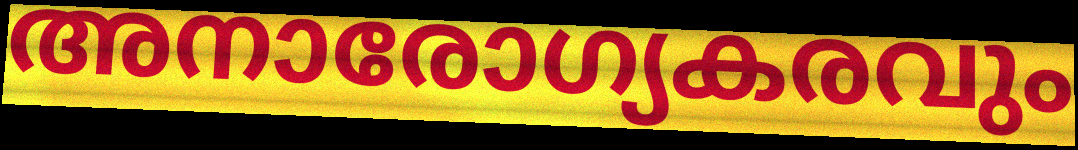
അനാരോഗ്യകരവും